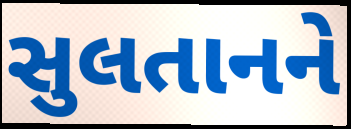
સુલતાનને